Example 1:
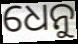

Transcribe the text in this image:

ଧେନୁ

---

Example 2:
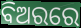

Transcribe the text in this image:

ବିଅରରେ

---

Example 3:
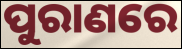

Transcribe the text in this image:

ପୁରାଣରେ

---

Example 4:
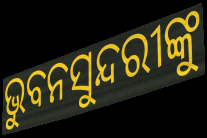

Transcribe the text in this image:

ଭୁବନସୁନ୍ଦରୀଙ୍କୁ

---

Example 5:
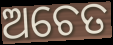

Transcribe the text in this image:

ଅଚେତ